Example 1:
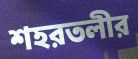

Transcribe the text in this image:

শহরতলীর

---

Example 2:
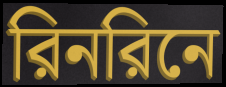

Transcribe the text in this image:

রিনরিনে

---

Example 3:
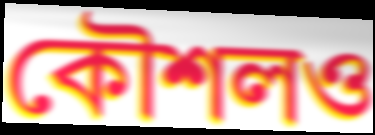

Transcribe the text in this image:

কৌশলও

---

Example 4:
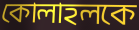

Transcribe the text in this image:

কোলাহলকে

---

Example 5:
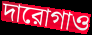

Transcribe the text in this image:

দারোগাও